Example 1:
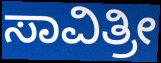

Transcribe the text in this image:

ಸಾವಿತ್ರೀ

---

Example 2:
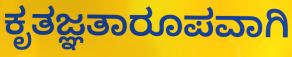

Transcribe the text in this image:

ಕೃತಜ್ಞತಾರೂಪವಾಗಿ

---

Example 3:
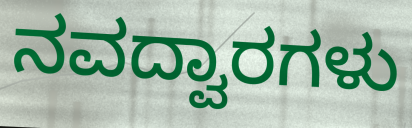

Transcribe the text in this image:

ನವದ್ವಾರಗಳು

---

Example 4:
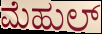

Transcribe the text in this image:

ಮೆಹುಲ್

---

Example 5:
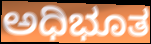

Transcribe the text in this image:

ಅಧಿಭೂತ